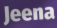
Jeena